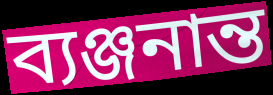
ব্যঞ্জনান্ত